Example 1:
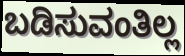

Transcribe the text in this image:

ಬಡಿಸುವಂತಿಲ್ಲ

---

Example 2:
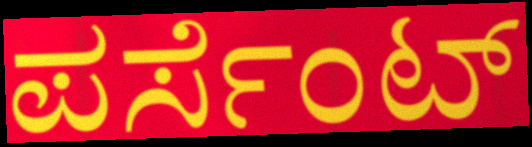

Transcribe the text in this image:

ಪರ್ಸೆಂಟ್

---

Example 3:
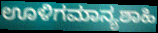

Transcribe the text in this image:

ಊಳಿಗಮಾನ್ಯಶಾಹಿ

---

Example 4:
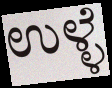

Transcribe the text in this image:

ಉಳ್ಳೆ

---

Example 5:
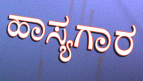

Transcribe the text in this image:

ಹಾಸ್ಯಗಾರ